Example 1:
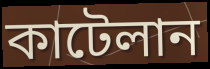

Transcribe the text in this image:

কাটেলান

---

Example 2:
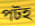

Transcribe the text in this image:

পটহ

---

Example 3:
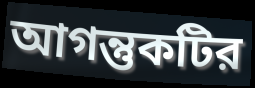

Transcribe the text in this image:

আগন্তুকটির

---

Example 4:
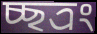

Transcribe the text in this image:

চ্ছত্রং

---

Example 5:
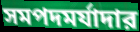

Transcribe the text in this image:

সমপদমর্যাদার